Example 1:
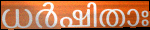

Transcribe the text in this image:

ധർഷിതാഃ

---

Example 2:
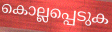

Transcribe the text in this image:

കൊല്ലപ്പെടുക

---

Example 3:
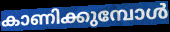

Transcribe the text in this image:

കാണിക്കുമ്പോൾ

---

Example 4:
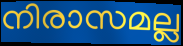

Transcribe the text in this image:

നിരാസമല്ല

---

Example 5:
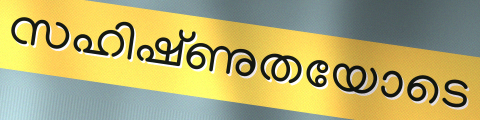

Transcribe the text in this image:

സഹിഷ്‌ണുതയോടെ